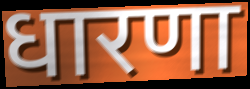
धारणा